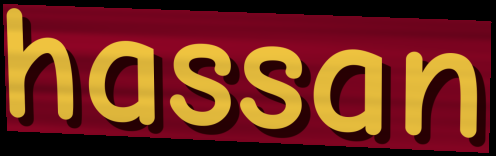
hassan